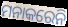
ମନାକରେନି